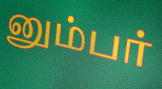
னும்பர்